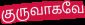
குருவாகவே